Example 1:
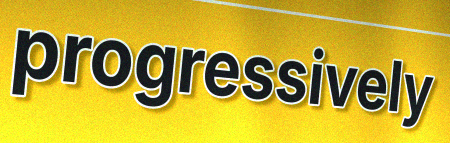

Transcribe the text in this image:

progressively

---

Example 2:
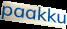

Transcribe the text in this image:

paakku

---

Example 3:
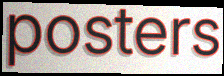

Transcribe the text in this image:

posters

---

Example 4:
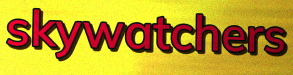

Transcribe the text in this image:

skywatchers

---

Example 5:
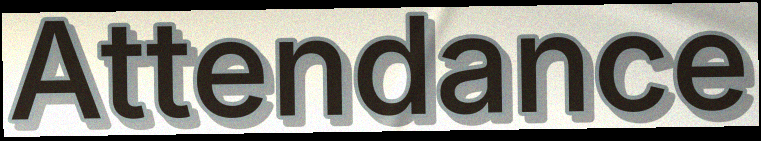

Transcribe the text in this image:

Attendance